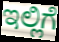
ಇಲ್ಲಿಗೆ